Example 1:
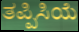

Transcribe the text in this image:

ತಪ್ಪಿಸಿಯೆ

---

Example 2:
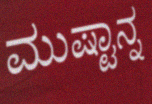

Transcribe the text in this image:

ಮುಷ್ಟಾನ್ನ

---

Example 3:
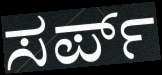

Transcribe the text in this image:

ಸರ್ಪ್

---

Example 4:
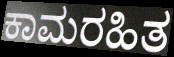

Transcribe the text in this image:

ಕಾಮರಹಿತ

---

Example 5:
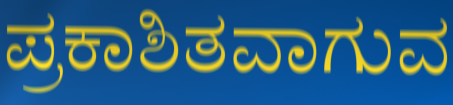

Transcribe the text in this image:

ಪ್ರಕಾಶಿತವಾಗುವ